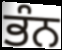
ਭੰਨ